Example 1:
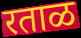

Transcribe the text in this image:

रताळ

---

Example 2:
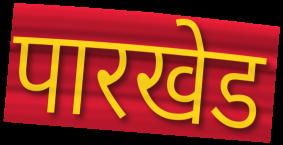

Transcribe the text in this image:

पारखेड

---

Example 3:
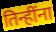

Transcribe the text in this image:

तिन्हींना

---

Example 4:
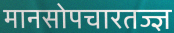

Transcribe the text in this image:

मानसोपचारतज्ज्ञ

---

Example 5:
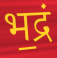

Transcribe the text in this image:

भ॒द्रं